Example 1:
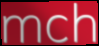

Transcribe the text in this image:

mch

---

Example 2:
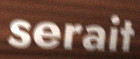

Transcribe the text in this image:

serait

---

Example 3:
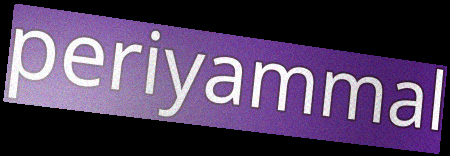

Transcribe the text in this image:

periyammal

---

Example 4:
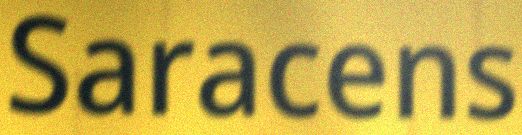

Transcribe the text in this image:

Saracens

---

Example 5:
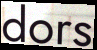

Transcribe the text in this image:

dors